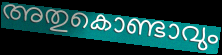
അതുകൊണ്ടാവും